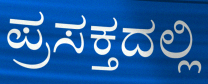
ಪ್ರಸಕ್ತದಲ್ಲಿ